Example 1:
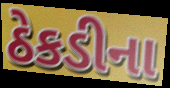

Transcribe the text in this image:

ઠેકડીના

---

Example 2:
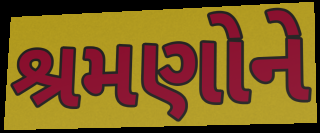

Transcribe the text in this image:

શ્રમણોને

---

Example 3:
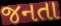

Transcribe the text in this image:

જનતા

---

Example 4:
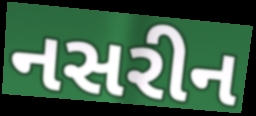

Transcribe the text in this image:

નસરીન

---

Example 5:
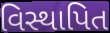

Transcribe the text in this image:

વિસ્થાપિત